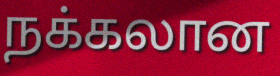
நக்கலான